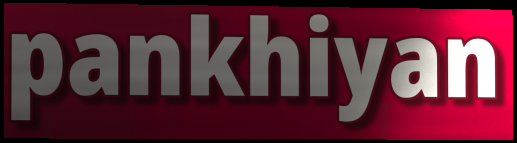
pankhiyan